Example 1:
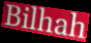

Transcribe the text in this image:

Bilhah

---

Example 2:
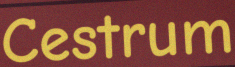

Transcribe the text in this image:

Cestrum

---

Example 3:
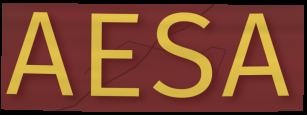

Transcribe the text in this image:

AESA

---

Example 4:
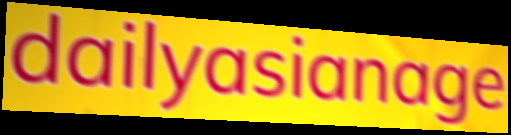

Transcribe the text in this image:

dailyasianage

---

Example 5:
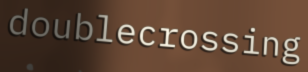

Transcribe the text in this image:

doublecrossing